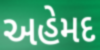
અહેમદ